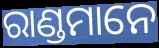
ରାଣ୍ଡମାନେ